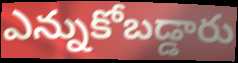
ఎన్నుకోబడ్డారు